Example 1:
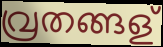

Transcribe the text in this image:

വ്രതങ്ങള്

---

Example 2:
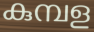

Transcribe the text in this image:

കുമ്പള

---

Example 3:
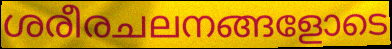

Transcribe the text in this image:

ശരീരചലനങ്ങളോടെ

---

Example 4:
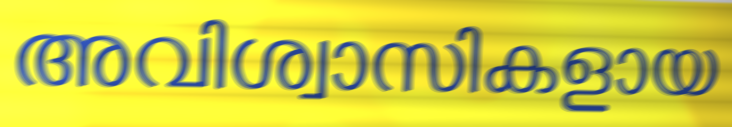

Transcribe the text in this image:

അവിശ്വാസികളായ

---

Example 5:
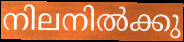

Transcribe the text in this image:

നിലനിൽക്കു